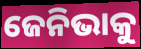
ଜେନିଭାକୁ